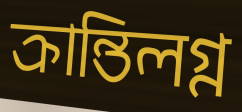
ক্রান্তিলগ্ন